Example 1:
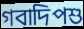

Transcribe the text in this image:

গবাদিপশু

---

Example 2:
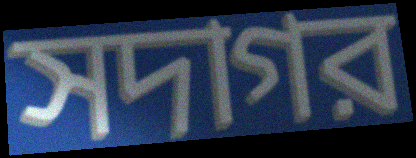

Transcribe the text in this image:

সদাগর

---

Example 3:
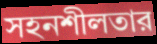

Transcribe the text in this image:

সহনশীলতার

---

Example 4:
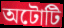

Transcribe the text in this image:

অটোটি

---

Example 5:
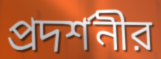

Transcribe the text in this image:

প্রদর্শনীর